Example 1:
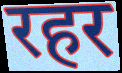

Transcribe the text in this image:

रहर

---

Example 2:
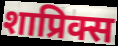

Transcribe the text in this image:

शाप्रिक्स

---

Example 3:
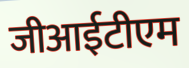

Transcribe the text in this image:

जीआईटीएम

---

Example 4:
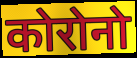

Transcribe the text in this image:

कोरोनो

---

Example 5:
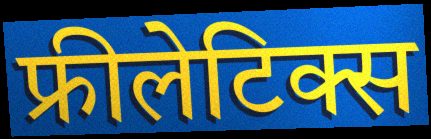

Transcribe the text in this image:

फ्रीलेटिक्स